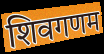
शिवगणम